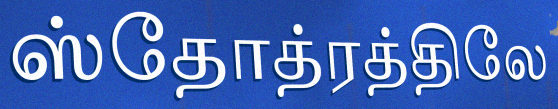
ஸ்தோத்ரத்திலே